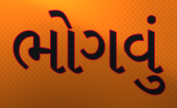
ભોગવું